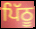
ਪਿੱਠੂ